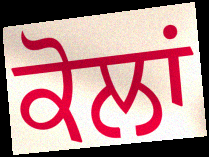
ਕੋਲਾਂ